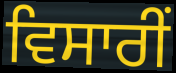
ਵਿਸਾਰੀਂ